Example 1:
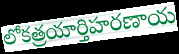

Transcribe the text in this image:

లోకత్రయార్తిహరణాయ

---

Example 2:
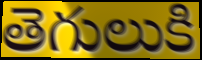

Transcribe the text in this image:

తెగులుకి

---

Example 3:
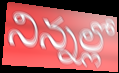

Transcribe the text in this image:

నిన్నల్లో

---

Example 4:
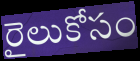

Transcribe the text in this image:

రైలుకోసం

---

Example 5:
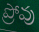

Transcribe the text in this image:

ప్రోవు